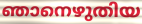
ഞാനെഴുതിയ